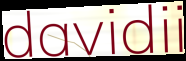
davidii